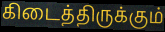
கிடைத்திருக்கும்